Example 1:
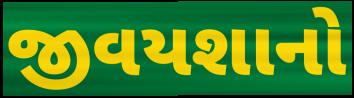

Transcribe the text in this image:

જીવયશાનો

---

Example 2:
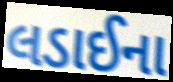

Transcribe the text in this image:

લડાઈના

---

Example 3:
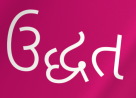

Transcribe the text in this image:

ઉદ્ધત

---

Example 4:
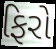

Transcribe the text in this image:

ફિરો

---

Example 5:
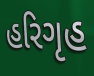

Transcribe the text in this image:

હરિગૃહ